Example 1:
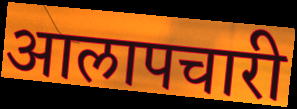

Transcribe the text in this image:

आलापचारी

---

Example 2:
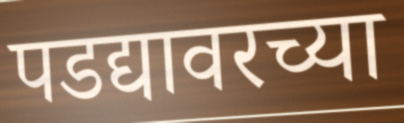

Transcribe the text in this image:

पडद्यावरच्या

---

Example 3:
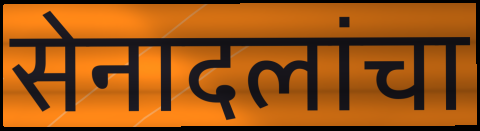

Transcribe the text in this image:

सेनादलांचा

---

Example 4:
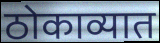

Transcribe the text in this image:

ठोकाव्यात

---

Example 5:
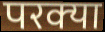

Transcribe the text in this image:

परक्या